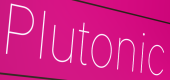
Plutonic